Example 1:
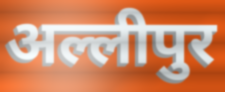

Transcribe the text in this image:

अल्लीपुर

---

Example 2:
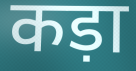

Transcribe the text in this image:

कड़ा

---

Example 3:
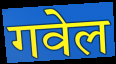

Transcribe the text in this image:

गवेल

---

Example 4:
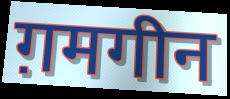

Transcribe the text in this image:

ग़मगीन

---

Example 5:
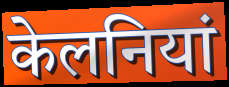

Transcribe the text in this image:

केलनियां